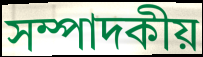
সম্পাদকীয়